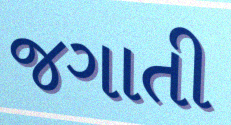
જગાતી